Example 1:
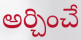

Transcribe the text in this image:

అర్చించే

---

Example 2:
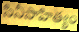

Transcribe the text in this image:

సినీసాహిత్యం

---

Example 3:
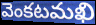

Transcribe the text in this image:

వెంకటమఖి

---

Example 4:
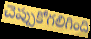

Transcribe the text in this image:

చెప్పుకోగలిగింది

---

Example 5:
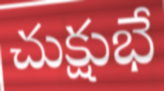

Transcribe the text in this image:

చుక్షుభే